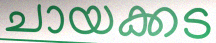
ചായക്കട